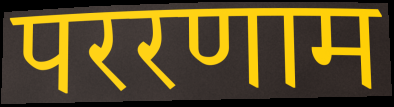
पररणाम